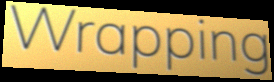
Wrapping